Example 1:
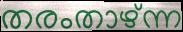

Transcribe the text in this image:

തരംതാഴ്ന്ന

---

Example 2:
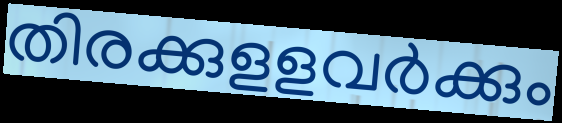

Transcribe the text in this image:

തിരക്കുളളവർക്കും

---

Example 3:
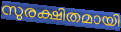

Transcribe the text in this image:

സുരക്ഷിതമായി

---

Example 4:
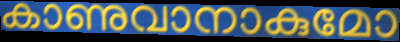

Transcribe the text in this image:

കാണുവാനാകുമോ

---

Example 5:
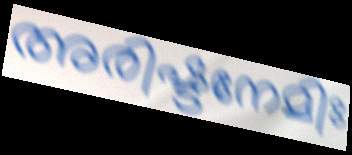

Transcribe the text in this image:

അരിഷ്ടനേമിഃ